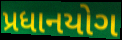
પ્રધાનયોગ